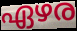
ഏഴര